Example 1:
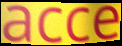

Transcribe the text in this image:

acce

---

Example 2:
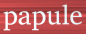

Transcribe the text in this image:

papule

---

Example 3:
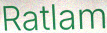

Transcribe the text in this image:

Ratlam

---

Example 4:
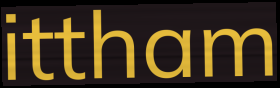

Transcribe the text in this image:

ittham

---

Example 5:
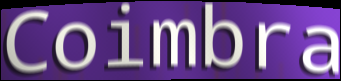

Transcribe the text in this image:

Coimbra